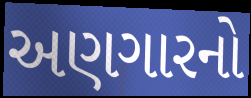
અણગારનો